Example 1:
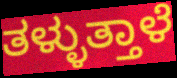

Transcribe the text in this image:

ತಳ್ಳುತ್ತಾಳೆ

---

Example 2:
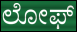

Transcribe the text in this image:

ಲೋಫ್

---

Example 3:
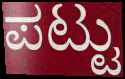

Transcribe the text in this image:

ಪಟ್ಟು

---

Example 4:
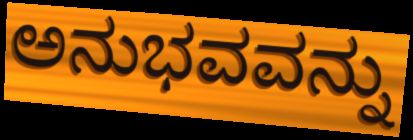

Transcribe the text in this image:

ಅನುಭವವನ್ನು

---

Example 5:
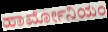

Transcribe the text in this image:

ಹಾರ್ಮೋನಿಯಂ